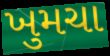
ખુમચા